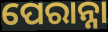
ପେରାନ୍ନା